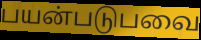
பயன்படுபவை